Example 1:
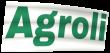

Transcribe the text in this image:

Agroli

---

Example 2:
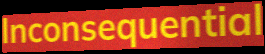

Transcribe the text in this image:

Inconsequential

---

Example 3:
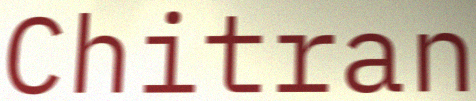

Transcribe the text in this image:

Chitran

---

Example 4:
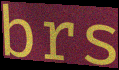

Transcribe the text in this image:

brs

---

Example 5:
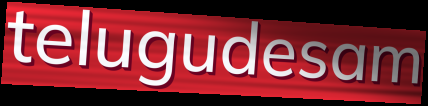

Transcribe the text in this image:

telugudesam